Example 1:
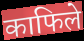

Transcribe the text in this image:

काफिले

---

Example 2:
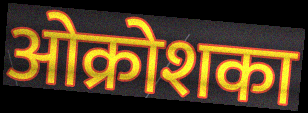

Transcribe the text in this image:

ओक्रोशका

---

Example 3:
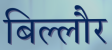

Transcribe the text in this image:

बिल्लौर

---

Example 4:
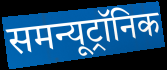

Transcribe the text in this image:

समन्यूट्रॉनिक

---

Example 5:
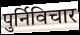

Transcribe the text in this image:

पुर्निविचार